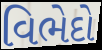
વિભેદો